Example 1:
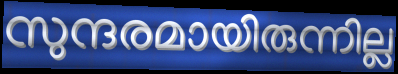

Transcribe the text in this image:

സുന്ദരമായിരുന്നില്ല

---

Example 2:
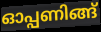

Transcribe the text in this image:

ഓപ്പണിങ്ങ്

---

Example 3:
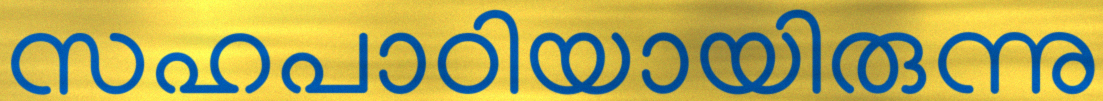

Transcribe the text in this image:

സഹപാഠിയായിരുന്നു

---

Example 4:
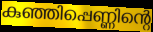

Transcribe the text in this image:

കുഞ്ഞിപ്പെണ്ണിന്റെ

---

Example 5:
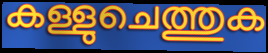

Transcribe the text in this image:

കള്ളുചെത്തുക